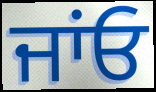
ਜਾਂਓ